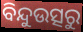
ବିନ୍ଦୁଉତ୍ସରୁ